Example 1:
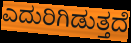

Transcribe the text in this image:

ಎದುರಿಗಿಡುತ್ತದೆ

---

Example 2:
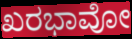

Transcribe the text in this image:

ಖರಭಾವೋ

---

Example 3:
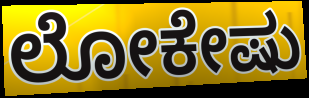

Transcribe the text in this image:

ಲೋಕೇಷು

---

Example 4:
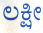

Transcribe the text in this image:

ಲಕ್ಷೀ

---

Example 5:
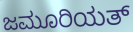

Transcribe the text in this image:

ಜಮೂರಿಯತ್